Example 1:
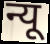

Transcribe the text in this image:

न्यू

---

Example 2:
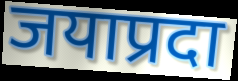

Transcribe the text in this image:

जयाप्रदा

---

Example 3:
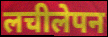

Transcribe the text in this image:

लचीलेपन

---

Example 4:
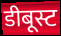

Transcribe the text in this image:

डीबूस्ट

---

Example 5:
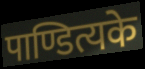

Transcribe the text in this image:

पाण्डित्यके